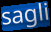
sagli